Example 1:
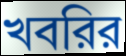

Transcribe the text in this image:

খবরির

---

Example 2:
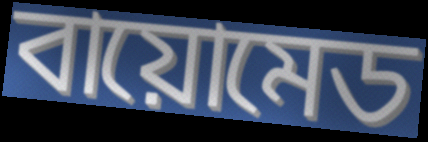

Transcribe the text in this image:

বায়োমেড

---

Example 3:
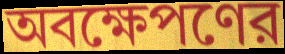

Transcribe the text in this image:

অবক্ষেপণের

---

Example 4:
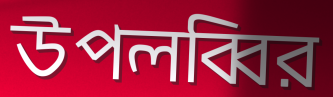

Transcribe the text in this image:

উপলব্বির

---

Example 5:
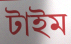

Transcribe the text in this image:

টাইম